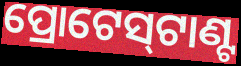
ପ୍ରୋଟେସ୍‌ଟାଣ୍ଟ